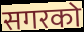
सगरको